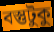
বস্তুটুকু